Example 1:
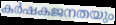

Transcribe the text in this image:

കർഷകജനതയും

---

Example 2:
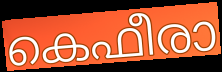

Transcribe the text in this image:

കെഫീരാ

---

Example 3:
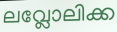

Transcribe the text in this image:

ലവ്ലോലിക്ക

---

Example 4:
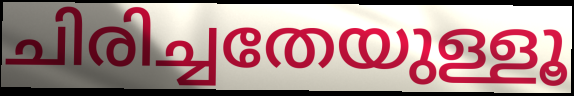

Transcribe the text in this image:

ചിരിച്ചതേയുള്ളൂ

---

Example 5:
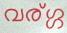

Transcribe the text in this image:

വര്ഗ്ഗ